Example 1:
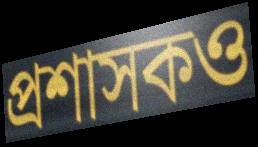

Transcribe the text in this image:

প্রশাসকও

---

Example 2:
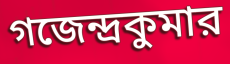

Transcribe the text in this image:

গজেন্দ্রকুমার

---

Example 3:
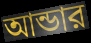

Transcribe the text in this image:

আন্ডার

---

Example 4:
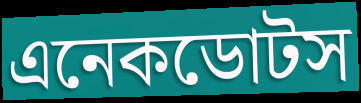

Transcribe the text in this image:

এনেকডোটস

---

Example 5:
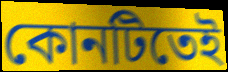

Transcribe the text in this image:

কোনটিতেই